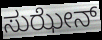
ಸುಝೇನ್